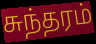
சுந்தரம்